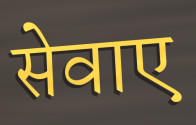
सेवाए